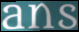
ans